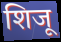
शिजू